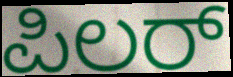
ಪಿಲರ್